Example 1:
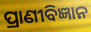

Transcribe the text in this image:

ପ୍ରାଣୀବିଜ୍ଞାନ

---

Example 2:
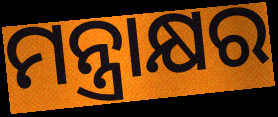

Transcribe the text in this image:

ମନ୍ତ୍ରାକ୍ଷର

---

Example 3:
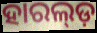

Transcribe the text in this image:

ହାରଲ୍ଡ଼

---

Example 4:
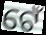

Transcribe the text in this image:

ଟେଁ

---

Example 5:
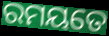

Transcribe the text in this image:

ରମୟତେ